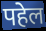
पहेल